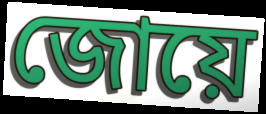
জোয়ে